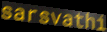
sarsvathi